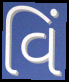
વિં